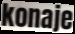
konaje